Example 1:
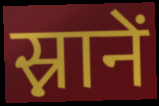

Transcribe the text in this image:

स्नानें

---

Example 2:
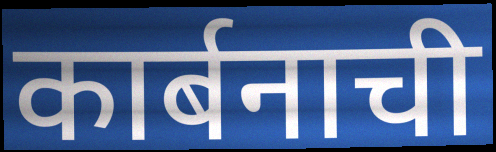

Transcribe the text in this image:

कार्बनाची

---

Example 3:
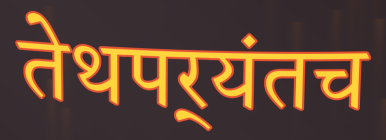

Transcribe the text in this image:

तेथपर्यंतच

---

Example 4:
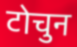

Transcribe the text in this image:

टोचुन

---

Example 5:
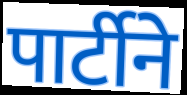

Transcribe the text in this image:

पार्टीने